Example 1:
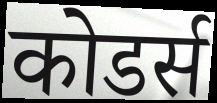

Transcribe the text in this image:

कोडर्स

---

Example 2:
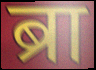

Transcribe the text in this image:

ब्रा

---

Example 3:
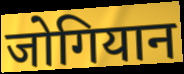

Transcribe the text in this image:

जोगियान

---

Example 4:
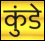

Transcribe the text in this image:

कुंडे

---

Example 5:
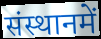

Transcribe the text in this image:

संस्थानमें